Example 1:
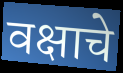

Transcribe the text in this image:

वक्षाचे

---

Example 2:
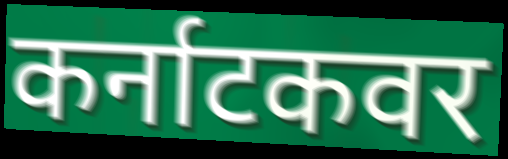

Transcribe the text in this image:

कर्नाटकवर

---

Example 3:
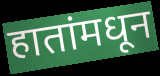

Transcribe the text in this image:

हातांमधून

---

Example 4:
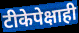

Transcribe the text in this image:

टीकेपेक्षाही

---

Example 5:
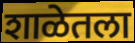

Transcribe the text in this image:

शाळेतला